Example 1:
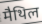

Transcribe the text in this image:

मैथिल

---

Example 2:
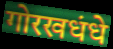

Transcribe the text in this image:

गोरखधंधे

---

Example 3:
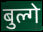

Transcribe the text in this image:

बुल्गे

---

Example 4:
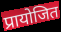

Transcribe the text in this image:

प्रायोजित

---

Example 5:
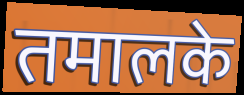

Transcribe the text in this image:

तमालके